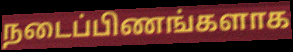
நடைப்பிணங்களாக